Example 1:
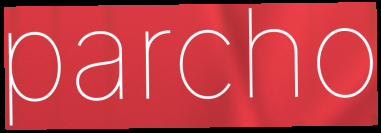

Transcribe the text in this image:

parcho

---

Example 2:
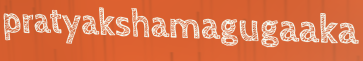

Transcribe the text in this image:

pratyakshamagugaaka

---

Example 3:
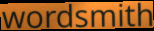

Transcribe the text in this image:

wordsmith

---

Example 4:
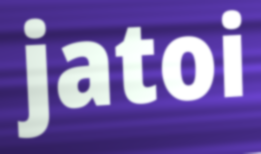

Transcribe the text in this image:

jatoi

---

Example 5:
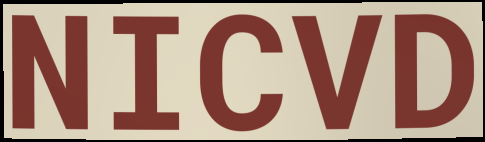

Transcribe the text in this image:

NICVD